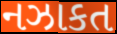
નઝાકત